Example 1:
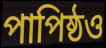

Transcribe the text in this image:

পাপিষ্ঠও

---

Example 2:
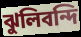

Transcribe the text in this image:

ঝুলিবন্দি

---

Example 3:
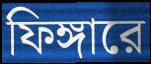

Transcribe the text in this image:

ফিঙ্গারে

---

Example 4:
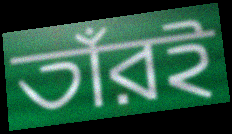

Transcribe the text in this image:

তাঁরই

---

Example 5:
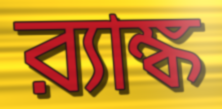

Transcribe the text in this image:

র‍্যাঙ্ক